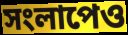
সংলাপেও